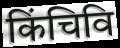
किंचिवि